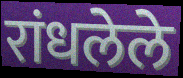
रांधलेले